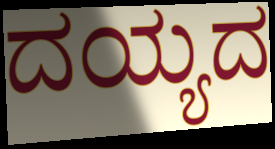
ದಯ್ಯದ